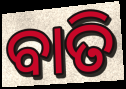
ବାତି